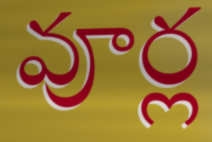
వూర్ల